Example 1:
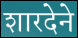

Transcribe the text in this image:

शारदेने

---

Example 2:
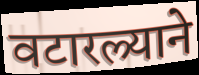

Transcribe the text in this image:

वटारल्याने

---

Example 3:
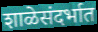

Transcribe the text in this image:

शाळेसंदर्भात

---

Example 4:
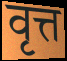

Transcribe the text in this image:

वृत्त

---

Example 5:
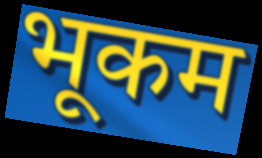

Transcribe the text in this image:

भूकम